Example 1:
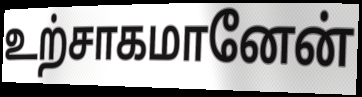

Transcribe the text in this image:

உற்சாகமானேன்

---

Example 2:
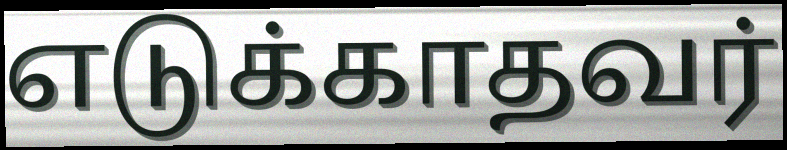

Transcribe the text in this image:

எடுக்காதவர்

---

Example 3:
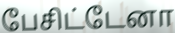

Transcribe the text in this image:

பேசிட்டேனா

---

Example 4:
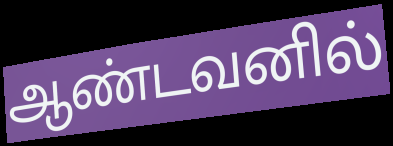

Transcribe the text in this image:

ஆண்டவனில்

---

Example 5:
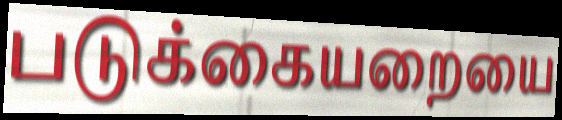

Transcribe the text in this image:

படுக்கையறையை